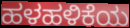
ಹಳಹಳಿಕೆಯ